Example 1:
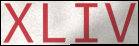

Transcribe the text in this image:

XLIV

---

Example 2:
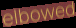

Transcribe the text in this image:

elbowed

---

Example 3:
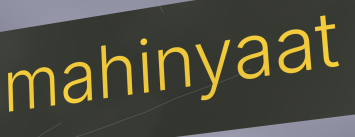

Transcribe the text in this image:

mahinyaat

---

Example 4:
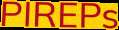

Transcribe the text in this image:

PIREPs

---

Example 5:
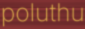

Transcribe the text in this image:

poluthu